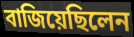
বাজিয়েছিলেন